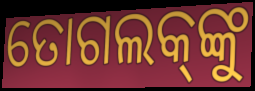
ତୋଗଲକ୍‌ଙ୍କୁ